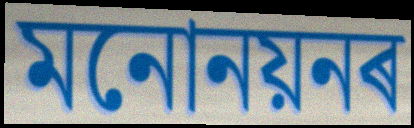
মনোনয়নৰ